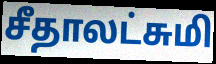
சீதாலட்சுமி